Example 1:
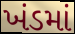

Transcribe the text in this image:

ખંડમાં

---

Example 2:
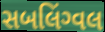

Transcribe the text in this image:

સબલિંગ્વલ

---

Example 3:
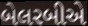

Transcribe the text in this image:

બેલરબીએ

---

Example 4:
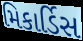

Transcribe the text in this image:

મિકાર્ડિસ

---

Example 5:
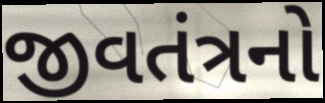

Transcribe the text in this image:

જીવતંત્રનો